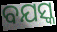
ବଯସ୍କ